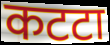
कटटा